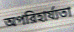
অপরিহার্য্যতা